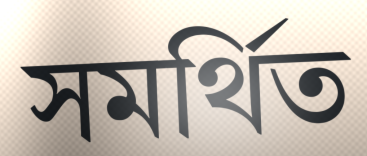
সমর্থিত